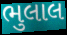
ભુલાલ